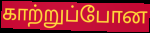
காற்றுப்போன